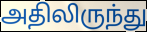
அதிலிருந்து